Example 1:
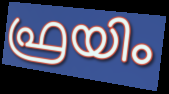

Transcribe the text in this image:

ഫ്രയിം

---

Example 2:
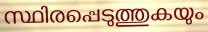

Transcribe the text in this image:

സ്ഥിരപ്പെടുത്തുകയും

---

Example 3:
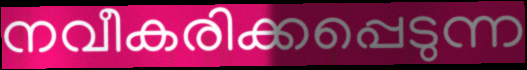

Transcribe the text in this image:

നവീകരിക്കപ്പെടുന്ന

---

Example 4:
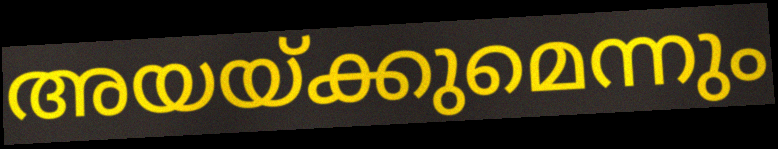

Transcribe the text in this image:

അയയ്ക്കുമെന്നും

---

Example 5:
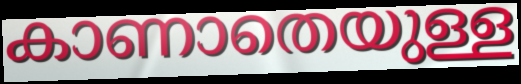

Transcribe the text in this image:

കാണാതെയുള്ള